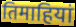
तिमाहियां